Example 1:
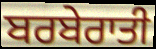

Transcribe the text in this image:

ਬਰਬੇਰਾਤੀ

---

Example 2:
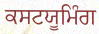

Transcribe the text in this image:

ਕਸਟਯੂਮਿੰਗ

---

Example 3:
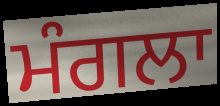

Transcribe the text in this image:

ਮੰਗਲਾ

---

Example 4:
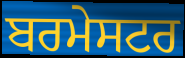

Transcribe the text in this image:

ਬਰਮੇਸਟਰ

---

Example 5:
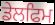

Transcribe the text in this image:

ਡੇਲਫਿਮ